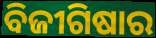
ବିଜୀଗିଷାର